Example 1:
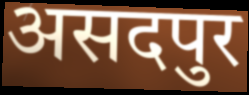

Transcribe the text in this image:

असदपुर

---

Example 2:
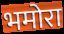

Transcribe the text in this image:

भमोरा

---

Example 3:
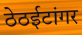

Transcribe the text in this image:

ठेठईटांगर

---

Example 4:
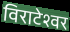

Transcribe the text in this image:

विराटेश्वर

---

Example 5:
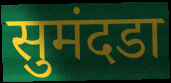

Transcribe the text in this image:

सुमंदडा